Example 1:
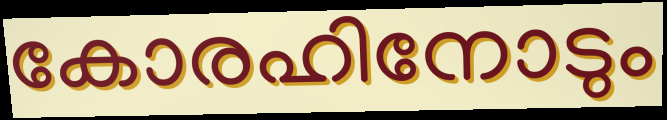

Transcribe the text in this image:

കോരഹിനോടും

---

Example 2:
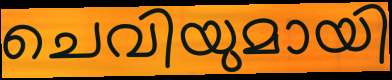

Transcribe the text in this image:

ചെവിയുമായി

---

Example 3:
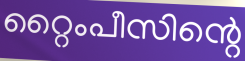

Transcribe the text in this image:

റ്റൈംപീസിന്റെ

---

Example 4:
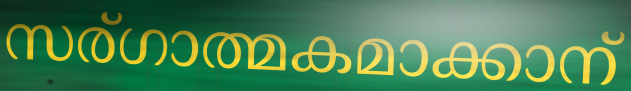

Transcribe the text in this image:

സര്ഗാത്മകമാക്കാന്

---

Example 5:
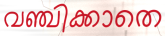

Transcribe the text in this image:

വഞ്ചിക്കാതെ